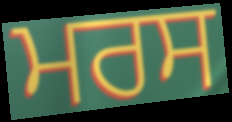
ਮਰਸ